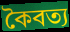
কৈবত্য